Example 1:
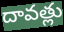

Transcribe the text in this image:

దావత్లు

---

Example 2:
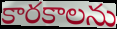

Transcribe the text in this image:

కారకాలను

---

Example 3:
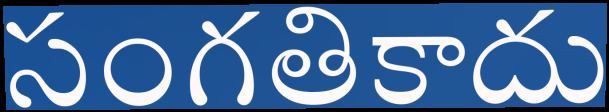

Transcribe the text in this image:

సంగతికాదు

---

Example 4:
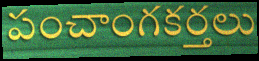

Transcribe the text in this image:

పంచాంగకర్తలు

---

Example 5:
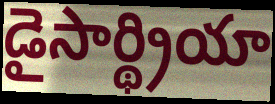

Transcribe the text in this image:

డైసార్థ్రియా